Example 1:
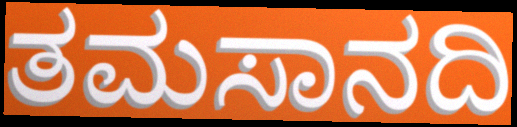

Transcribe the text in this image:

ತಮಸಾನದಿ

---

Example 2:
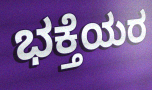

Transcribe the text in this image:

ಭಕ್ತೆಯರ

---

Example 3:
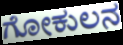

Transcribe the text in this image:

ಗೋಕುಲನ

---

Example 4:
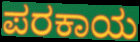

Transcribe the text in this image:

ಪರಕಾಯ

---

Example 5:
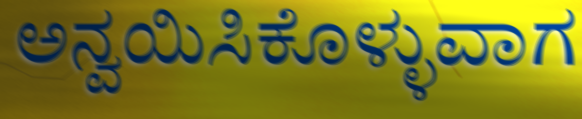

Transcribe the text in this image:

ಅನ್ವಯಿಸಿಕೊಳ್ಳುವಾಗ